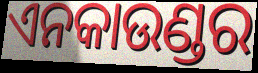
ଏନକାଉଣ୍ଡର